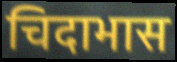
चिदाभास